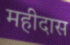
महीदास